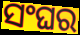
ସଂଘର